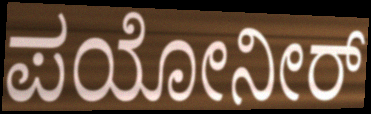
ಪಯೋನೀರ್